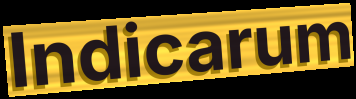
Indicarum